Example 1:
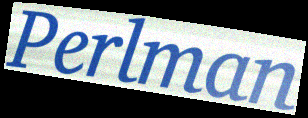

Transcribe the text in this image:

Perlman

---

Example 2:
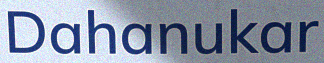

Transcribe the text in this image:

Dahanukar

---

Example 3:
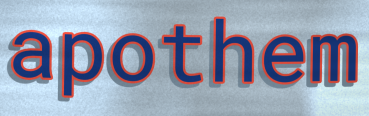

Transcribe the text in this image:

apothem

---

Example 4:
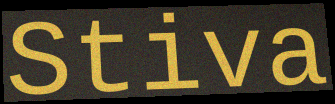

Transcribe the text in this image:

Stiva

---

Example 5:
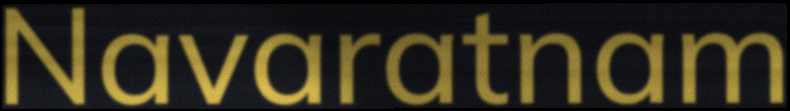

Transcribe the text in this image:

Navaratnam